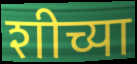
शीच्या